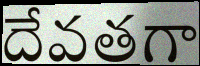
దేవతగా